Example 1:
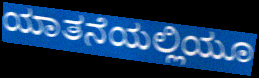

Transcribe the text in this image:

ಯಾತನೆಯಲ್ಲಿಯೂ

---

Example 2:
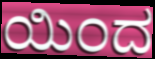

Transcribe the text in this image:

ಯಿಂದ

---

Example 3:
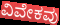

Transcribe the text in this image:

ವಿವೇಕವು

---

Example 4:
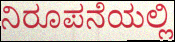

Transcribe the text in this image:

ನಿರೂಪನೆಯಲ್ಲಿ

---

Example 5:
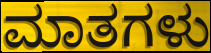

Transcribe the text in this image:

ಮಾತಗಳು